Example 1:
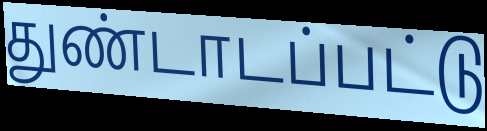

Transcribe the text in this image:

துண்டாடப்பட்டு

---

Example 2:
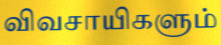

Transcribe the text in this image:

விவசாயிகளும்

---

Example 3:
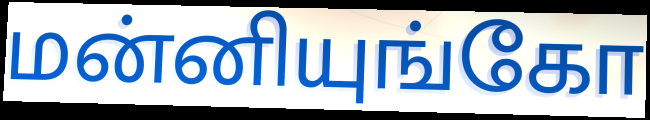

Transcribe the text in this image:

மன்னியுங்கோ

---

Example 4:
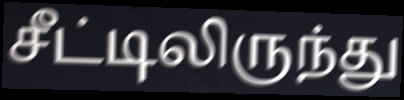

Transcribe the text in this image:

சீட்டிலிருந்து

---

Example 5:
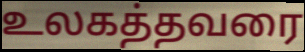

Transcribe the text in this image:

உலகத்தவரை